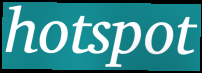
hotspot